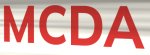
MCDA